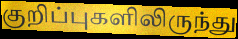
குறிப்புகளிலிருந்து